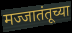
मज्जातंतूच्या